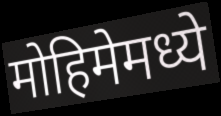
मोहिमेमध्ये